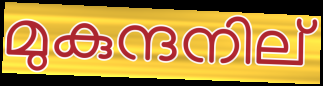
മുകുന്ദനില്